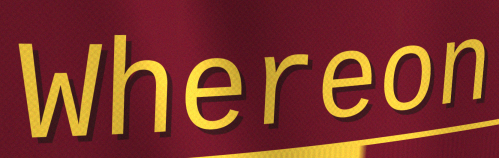
Whereon